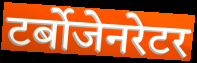
टर्बोजेनरेटर